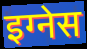
इग्नेस